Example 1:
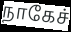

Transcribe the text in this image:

நாகேச்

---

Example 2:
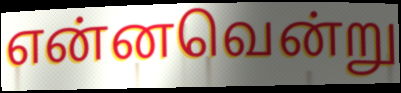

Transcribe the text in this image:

என்னவென்று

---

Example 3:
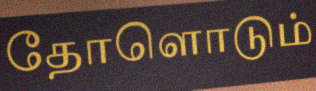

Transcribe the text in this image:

தோளொடும்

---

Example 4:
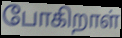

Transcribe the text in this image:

போகிறாள்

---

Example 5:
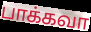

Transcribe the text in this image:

பாக்கவா